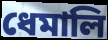
ধেমালি